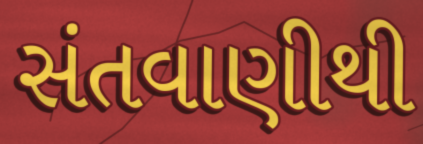
સંતવાણીથી